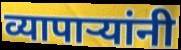
व्यापाऱ्यांनी